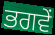
ਭਗਵੇਂ